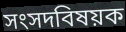
সংসদবিষয়ক